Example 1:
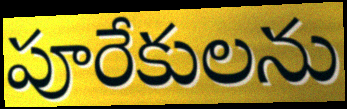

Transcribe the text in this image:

పూరేకులను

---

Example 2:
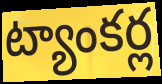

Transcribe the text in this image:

ట్యాంకర్ల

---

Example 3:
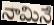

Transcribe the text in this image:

నామినే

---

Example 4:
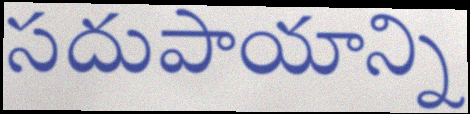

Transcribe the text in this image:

సదుపాయాన్ని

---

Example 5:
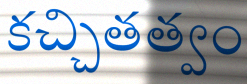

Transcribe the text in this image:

కచ్చితత్వం